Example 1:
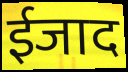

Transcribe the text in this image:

ईजाद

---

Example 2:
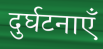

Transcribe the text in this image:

दुर्घटनाएँ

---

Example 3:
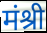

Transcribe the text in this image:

मंश्री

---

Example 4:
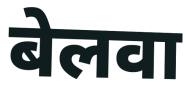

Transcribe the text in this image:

बेलवा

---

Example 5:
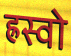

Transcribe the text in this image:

ह्रस्वो